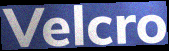
Velcro